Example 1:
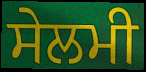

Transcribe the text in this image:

ਸੇਲਮੀ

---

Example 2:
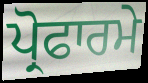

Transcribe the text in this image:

ਪ੍ਰੋਫਾਰਮੇ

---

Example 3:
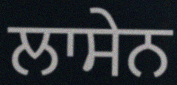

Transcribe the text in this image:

ਲਾਸੇਨ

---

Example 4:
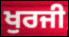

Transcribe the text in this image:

ਖੁਰਜੀ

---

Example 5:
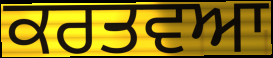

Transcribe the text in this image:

ਕਰਤਵਆ